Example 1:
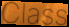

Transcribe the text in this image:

Class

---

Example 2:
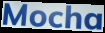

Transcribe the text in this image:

Mocha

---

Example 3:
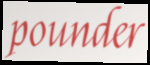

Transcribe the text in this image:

pounder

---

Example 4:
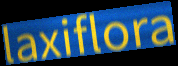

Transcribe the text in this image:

laxiflora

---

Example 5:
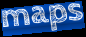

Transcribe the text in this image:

maps